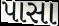
પાસા